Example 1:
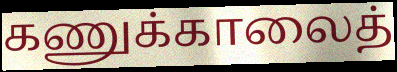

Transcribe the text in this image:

கணுக்காலைத்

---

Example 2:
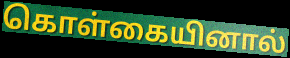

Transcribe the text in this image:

கொள்கையினால்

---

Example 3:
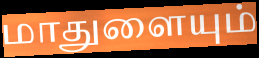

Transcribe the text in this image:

மாதுளையும்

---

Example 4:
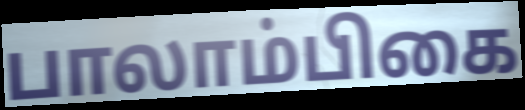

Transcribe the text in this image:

பாலாம்பிகை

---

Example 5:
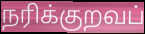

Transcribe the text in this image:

நரிக்குறவப்